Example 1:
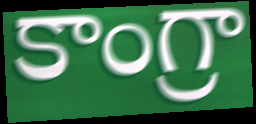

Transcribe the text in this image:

కాంగ్రా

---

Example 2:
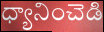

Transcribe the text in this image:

ధ్యానించెడి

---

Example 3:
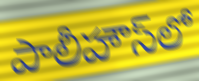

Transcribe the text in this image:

పాలీహౌస్‌లో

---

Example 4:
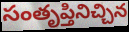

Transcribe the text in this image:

సంతృప్తినిచ్చిన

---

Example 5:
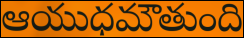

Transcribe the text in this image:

ఆయుధమౌతుంది